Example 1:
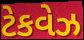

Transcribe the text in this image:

ટેકવેઝ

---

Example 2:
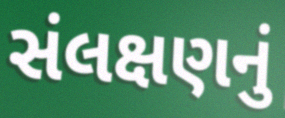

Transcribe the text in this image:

સંલક્ષણનું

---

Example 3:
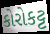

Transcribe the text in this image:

કોરોકટ્ટ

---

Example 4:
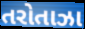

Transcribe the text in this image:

તરોતાઝા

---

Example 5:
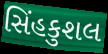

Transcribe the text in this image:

સિંહકુશલ